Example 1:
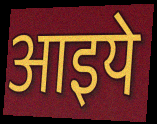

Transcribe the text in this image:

आइये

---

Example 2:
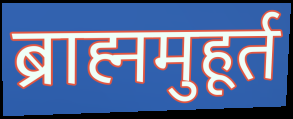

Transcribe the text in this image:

ब्राह्ममुहूर्त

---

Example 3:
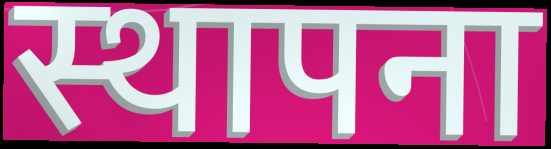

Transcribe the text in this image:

स्थापना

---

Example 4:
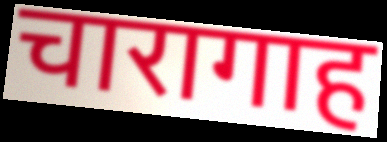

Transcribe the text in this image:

चारागाह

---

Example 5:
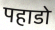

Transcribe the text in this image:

पहाडो